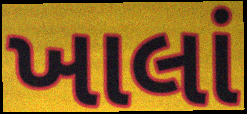
ખાલાં